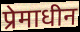
प्रेमाधीन